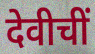
देवीचीं